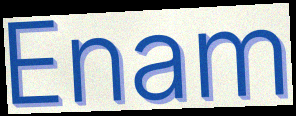
Enam